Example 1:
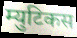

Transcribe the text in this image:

म्युटिकस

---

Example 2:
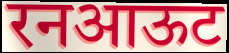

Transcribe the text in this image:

रनआऊट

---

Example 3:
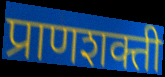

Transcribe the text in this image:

प्राणशक्ती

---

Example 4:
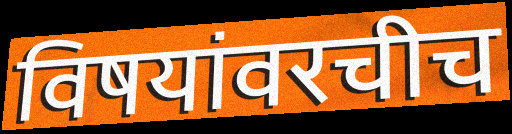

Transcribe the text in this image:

विषयांवरचीच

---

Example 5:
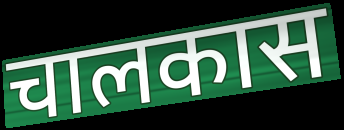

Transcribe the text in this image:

चालकास